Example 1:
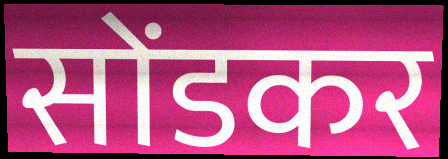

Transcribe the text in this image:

सोंडकर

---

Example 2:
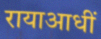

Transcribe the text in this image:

रायाआधीं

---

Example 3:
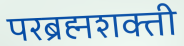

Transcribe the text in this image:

परब्रह्मशक्ती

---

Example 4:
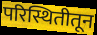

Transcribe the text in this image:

परिस्थितीतून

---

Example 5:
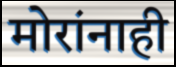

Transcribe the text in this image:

मोरांनाही